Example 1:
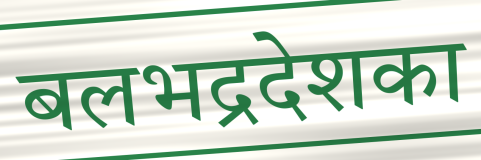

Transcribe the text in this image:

बलभद्रदेशका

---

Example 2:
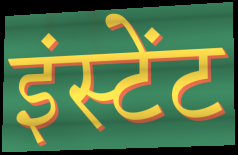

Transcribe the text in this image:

इंस्टेंट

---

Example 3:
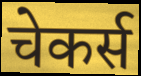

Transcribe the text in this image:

चेकर्स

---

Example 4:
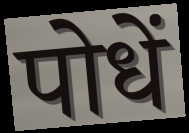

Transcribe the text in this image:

पोधें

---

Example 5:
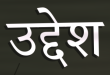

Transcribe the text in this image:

उद्देश